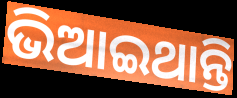
ଭିଆଇଥାନ୍ତି